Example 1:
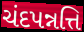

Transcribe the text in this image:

ચંદપન્નત્તિ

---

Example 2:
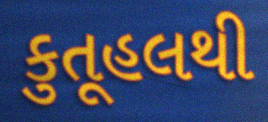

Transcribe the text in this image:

કુતૂહલથી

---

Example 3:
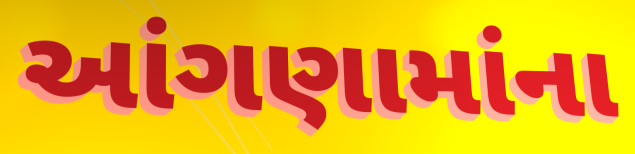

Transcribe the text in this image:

આંગણામાંના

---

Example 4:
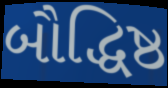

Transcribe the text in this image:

બૌદ્ધિષ્ઠ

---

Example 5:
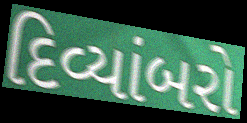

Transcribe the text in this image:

દિવ્યાંબરો